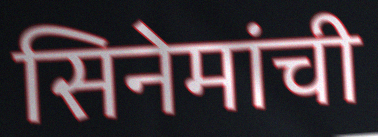
सिनेमांची